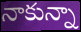
నాకున్నా